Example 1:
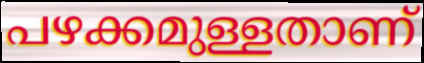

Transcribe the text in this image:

പഴക്കമുള്ളതാണ്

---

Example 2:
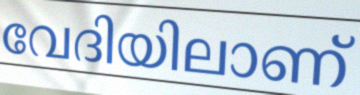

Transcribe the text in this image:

വേദിയിലാണ്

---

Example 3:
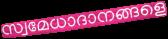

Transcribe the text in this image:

സ്വമേധാദാനങ്ങളെ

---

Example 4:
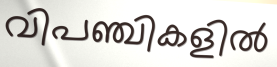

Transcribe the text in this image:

വിപഞ്ചികളിൽ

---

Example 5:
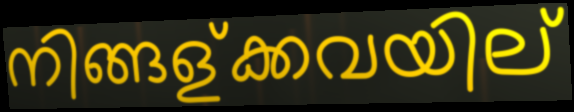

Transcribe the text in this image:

നിങ്ങള്ക്കവയില്